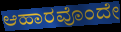
ಆಹಾರವೊಂದೇ